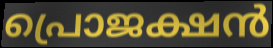
പ്രൊജക്ഷൻ